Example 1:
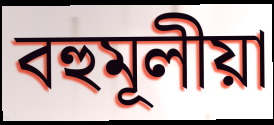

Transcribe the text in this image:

বহুমূলীয়া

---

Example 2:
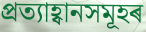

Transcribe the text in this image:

প্ৰত্যাহ্বানসমূহৰ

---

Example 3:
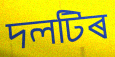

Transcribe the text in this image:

দলটিৰ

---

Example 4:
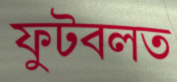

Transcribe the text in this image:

ফুটবলত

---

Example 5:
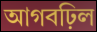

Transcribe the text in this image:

আগবঢ়িল